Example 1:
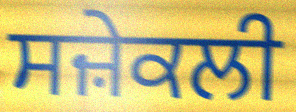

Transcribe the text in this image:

ਸਜ਼ੇਕਲੀ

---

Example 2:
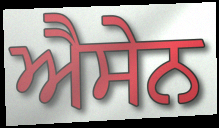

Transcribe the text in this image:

ਐਸੇਨ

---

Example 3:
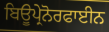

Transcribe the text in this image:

ਬਿਊਪ੍ਰੇਨੋਰਫਾਈਨ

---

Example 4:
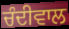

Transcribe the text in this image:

ਚੰਦੀਵਾਲ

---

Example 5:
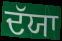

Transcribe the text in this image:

ਦੱਯਾ